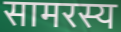
सामरस्य